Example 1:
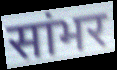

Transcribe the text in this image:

सांभर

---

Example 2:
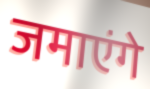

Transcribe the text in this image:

जमाएंगे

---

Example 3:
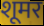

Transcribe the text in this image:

शूमर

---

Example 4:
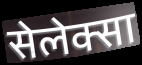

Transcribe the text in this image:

सेलेक्सा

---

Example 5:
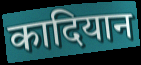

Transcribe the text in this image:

कादियान